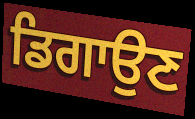
ਡਿਗਾਉਣ